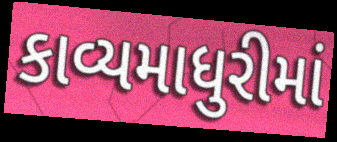
કાવ્યમાધુરીમાં